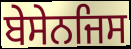
ਬੇਸੇਨਜਿਸ